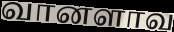
வானளாவ